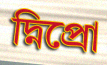
দ্নিপ্রো